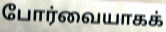
போர்வையாகக்